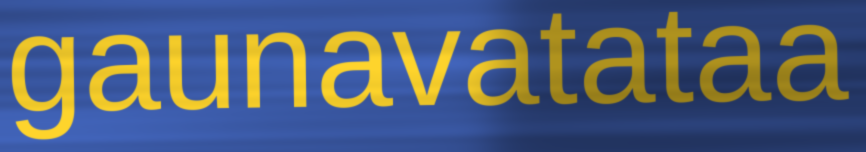
gaunavatataa